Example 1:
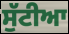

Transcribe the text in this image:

ਸੁੱਟੀਆ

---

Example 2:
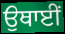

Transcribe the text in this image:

ਉਥਾਈਂ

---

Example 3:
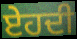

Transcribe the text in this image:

ਏਹਦੀ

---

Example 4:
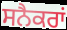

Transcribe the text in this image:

ਸਨੈਕਰਾਂ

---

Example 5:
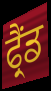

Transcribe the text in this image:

ਫ੍ਰੈਂਡ